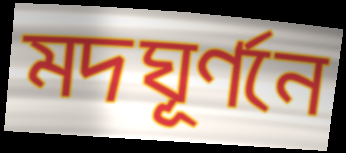
মদঘূর্ণনে